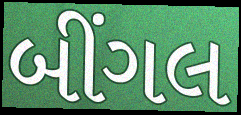
બીંગલ